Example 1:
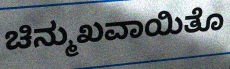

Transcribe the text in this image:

ಚಿನ್ಮುಖವಾಯಿತೊ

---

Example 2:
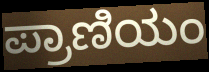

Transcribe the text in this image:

ಪ್ರಾಣಿಯಂ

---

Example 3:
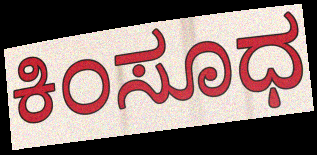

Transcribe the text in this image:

ಕಿಂಸೂಧ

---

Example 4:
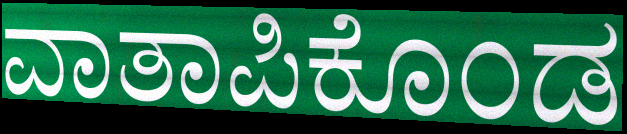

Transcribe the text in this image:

ವಾತಾಪಿಕೊಂಡ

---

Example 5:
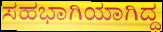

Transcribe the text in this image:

ಸಹಭಾಗಿಯಾಗಿದ್ದ